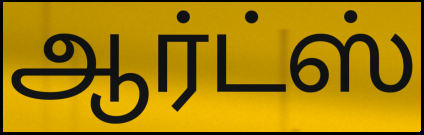
ஆர்ட்ஸ்